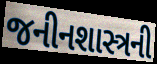
જનીનશાસ્ત્રની